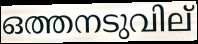
ഒത്തനടുവില്